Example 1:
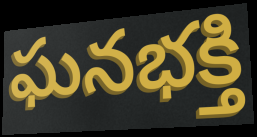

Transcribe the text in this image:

ఘనభక్తి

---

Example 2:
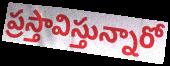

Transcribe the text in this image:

ప్రస్తావిస్తున్నారో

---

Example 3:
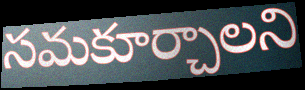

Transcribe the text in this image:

సమకూర్చాలని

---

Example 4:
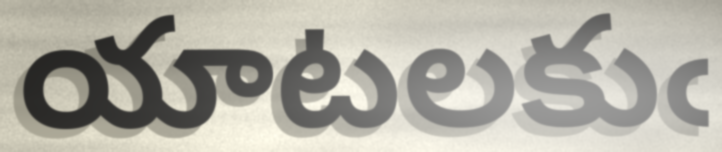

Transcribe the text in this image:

యాటలకుఁ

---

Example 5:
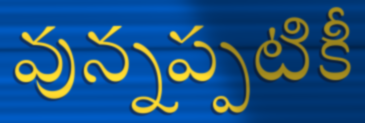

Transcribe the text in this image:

వున్నప్పటికీ